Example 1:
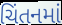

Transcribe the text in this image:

ચિંતનમાં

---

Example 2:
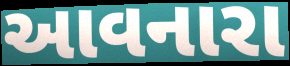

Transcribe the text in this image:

આવનારા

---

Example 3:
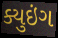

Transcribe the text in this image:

ક્યુઇંગ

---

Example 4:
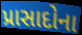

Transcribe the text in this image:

પ્રાસાદોના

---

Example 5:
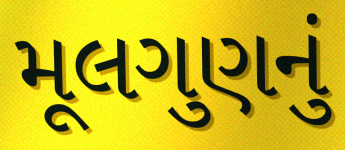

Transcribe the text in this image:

મૂલગુણનું